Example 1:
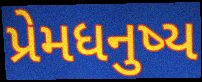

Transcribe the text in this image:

પ્રેમધનુષ્ય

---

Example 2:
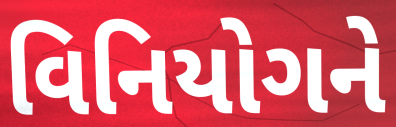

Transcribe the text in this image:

વિનિયોગને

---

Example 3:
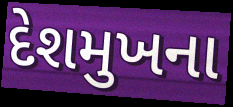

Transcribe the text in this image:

દેશમુખના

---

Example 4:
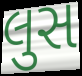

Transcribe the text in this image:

લુસ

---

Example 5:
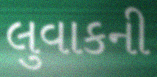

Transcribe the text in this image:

લુવાકની